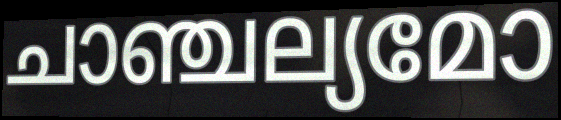
ചാഞ്ചല്യമോ